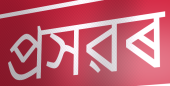
প্ৰসৱৰ